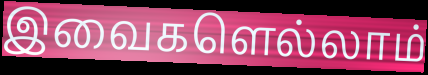
இவைகளெல்லாம்